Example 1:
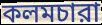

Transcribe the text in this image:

কলমচারা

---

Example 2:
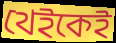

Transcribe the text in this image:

থেইকেই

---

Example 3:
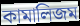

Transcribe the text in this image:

কামালিজম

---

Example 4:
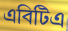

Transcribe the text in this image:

এবিটিএ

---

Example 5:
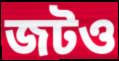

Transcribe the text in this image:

জটও